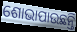
ଶୋଭାପାଉଛନ୍ତି